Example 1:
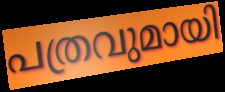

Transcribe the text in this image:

പത്രവുമായി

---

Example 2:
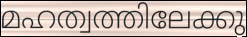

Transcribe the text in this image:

മഹത്വത്തിലേക്കു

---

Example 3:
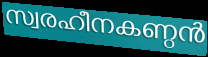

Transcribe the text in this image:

സ്വരഹീനകണ്ഠൻ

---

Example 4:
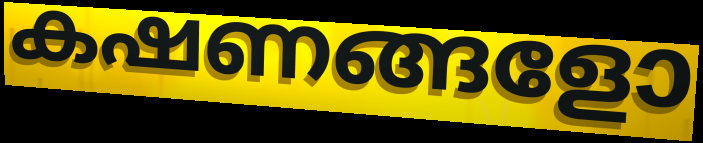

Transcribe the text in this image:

കഷണങ്ങളോ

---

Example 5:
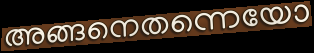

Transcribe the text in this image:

അങ്ങനെതന്നെയോ